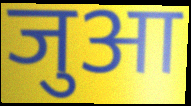
जुआ